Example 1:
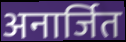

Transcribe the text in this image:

अनार्जित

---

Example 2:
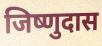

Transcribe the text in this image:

जिष्णुदास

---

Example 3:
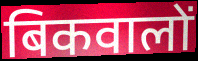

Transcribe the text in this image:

बिकवालों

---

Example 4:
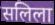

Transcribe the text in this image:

सलिला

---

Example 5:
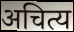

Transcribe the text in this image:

अचित्य